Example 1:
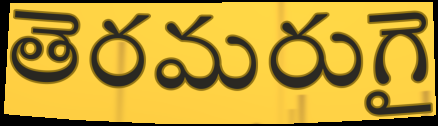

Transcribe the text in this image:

తెరమరుగై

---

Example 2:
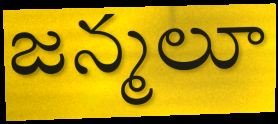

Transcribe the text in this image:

జన్మలూ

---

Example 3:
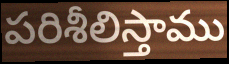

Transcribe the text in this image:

పరిశీలిస్తాము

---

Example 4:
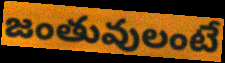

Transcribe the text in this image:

జంతువులంటే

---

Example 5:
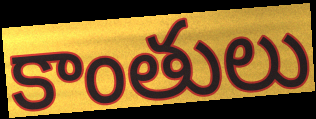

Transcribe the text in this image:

కాంతులు